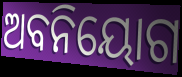
ଅବନିୟୋଗ